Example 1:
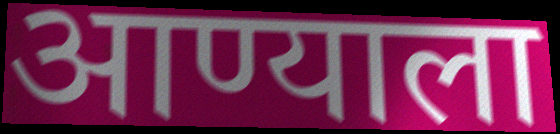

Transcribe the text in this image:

आण्याला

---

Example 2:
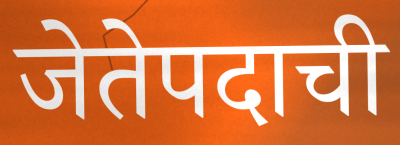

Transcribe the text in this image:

जेतेपदाची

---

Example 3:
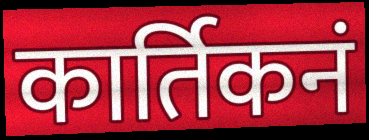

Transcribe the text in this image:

कार्तिकनं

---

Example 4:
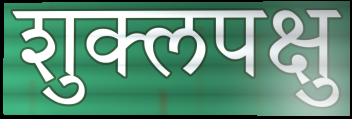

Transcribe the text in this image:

शुक्लपक्षु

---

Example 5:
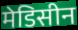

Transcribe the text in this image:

मेडिसीन